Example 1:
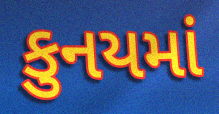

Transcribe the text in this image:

કુનયમાં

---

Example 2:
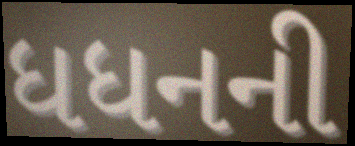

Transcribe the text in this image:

ધધનની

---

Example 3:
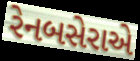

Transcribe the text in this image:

રેનબસેરાએ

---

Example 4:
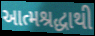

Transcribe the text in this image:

આત્મશ્રદ્ધાથી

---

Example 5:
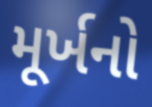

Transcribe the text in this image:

મૂર્ખનો